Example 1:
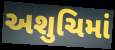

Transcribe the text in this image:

અશુચિમાં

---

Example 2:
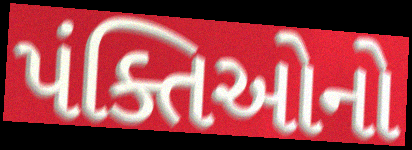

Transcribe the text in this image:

પંક્તિઓનો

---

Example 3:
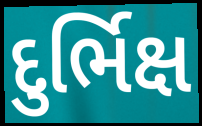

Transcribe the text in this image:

દુર્ભિક્ષ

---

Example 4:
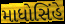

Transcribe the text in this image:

માધોસિંહે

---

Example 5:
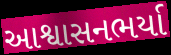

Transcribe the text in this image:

આશ્વાસનભર્યા